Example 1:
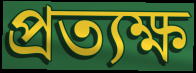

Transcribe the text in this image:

প্রত্যক্ষ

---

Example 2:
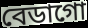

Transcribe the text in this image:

বেডাগো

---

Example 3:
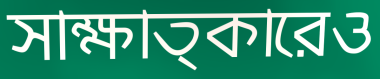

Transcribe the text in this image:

সাক্ষাত্কারেও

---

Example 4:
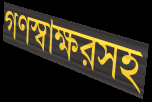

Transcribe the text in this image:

গণস্বাক্ষরসহ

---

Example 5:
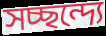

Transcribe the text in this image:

সচ্ছন্দ্যে